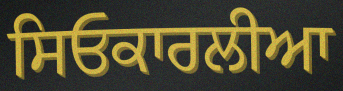
ਸਿਓਕਾਰਲੀਆ